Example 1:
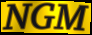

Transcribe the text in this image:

NGM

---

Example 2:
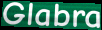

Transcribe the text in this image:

Glabra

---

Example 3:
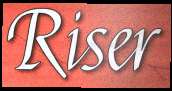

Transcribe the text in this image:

Riser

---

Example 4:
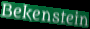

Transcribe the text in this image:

Bekenstein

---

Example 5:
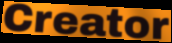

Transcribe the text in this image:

Creator